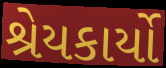
શ્રેયકાર્યો